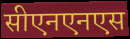
सीएनएनएस